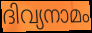
ദിവ്യനാമം